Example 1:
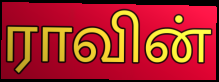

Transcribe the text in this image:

ராவின்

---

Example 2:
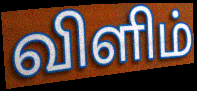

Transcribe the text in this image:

விளிம்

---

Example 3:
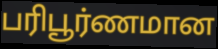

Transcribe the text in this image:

பரிபூர்ணமான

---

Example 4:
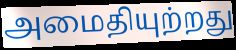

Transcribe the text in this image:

அமைதியுற்றது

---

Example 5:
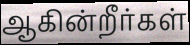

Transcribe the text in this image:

ஆகின்றீர்கள்